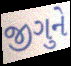
જીગુને